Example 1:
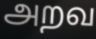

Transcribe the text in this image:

அறவ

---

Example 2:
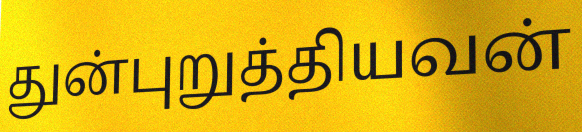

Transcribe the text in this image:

துன்புறுத்தியவன்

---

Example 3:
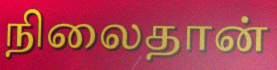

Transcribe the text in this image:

நிலைதான்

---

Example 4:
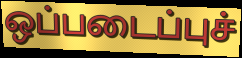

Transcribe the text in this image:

ஒப்படைப்புச்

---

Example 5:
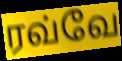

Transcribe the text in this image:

ரவ்வே